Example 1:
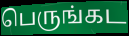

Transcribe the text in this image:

பெருங்கட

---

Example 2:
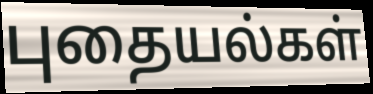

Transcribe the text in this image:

புதையல்கள்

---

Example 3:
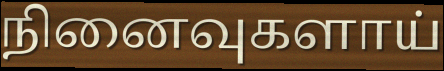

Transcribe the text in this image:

நினைவுகளாய்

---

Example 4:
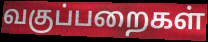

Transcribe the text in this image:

வகுப்பறைகள்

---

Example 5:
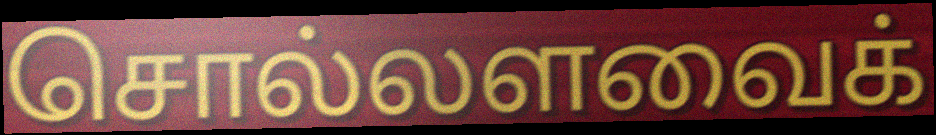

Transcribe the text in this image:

சொல்லளவைக்